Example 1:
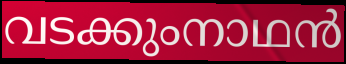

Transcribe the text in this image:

വടക്കുംനാഥൻ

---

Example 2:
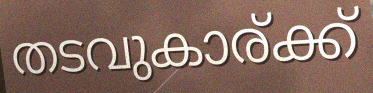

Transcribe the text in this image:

തടവുകാര്ക്ക്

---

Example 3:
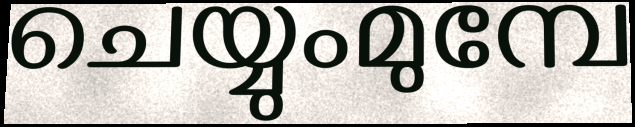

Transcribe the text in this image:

ചെയ്യുംമുമ്പേ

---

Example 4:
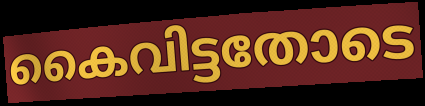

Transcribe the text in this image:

കൈവിട്ടതോടെ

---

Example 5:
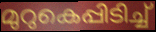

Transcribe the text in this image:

മുറുകെപ്പിടിച്ച്